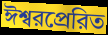
ঈশ্বরপ্রেরিত